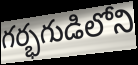
గర్భగుడిలోని